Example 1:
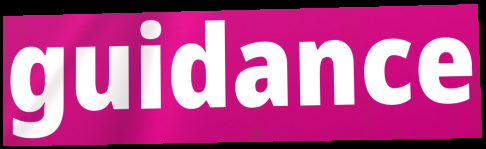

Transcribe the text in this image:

guidance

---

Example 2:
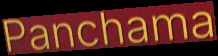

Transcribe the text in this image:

Panchama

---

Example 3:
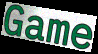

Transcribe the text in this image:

Game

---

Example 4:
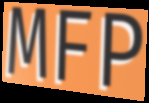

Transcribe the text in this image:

MFP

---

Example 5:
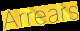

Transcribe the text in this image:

Arrears